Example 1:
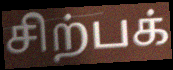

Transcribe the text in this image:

சிற்பக்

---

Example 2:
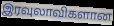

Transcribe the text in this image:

இரவுலாவிகளான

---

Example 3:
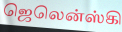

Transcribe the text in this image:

ஜெலென்ஸ்கி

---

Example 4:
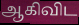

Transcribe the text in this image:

ஆகிவிட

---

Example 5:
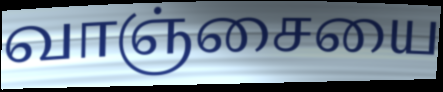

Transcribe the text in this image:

வாஞ்சையை